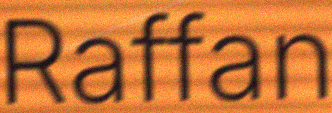
Raffan